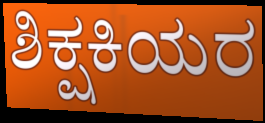
ಶಿಕ್ಷಕಿಯರ